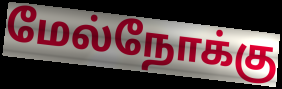
மேல்நோக்கு